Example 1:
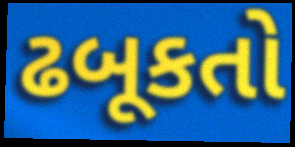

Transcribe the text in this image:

ઢબૂકતો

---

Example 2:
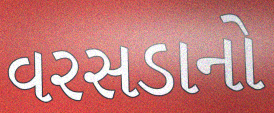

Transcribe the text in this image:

વરસડાનો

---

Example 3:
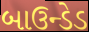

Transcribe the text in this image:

બાઉન્ડેડ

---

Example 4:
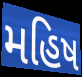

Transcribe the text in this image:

મહિષ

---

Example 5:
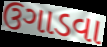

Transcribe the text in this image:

ઉગાડવા